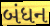
બંધન